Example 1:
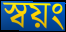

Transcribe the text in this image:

স্বয়ং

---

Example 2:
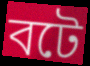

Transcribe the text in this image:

বটে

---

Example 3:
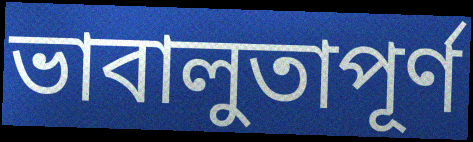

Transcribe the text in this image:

ভাবালুতাপূর্ণ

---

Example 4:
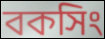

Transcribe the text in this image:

বকসিং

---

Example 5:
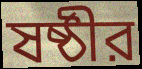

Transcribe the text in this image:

ষষ্ঠীর